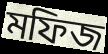
মফিজ